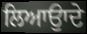
ਲਿਆਉਾਦੇ